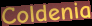
Coldenia